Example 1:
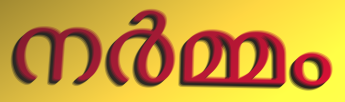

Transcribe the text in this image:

നർമ്മം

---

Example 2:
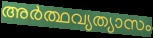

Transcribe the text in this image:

അർത്ഥവ്യത്യാസം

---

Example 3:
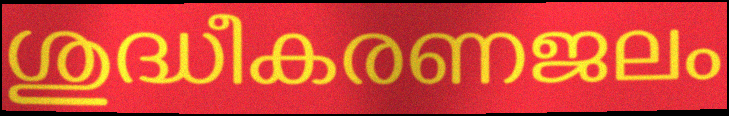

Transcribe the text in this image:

ശുദ്ധീകരണജലം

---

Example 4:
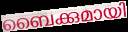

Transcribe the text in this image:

ബൈക്കുമായി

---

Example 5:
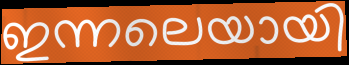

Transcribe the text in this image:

ഇന്നലെയായി